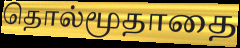
தொல்மூதாதை